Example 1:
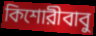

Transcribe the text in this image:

কিশোরীবাবু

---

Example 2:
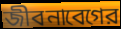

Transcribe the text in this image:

জীবনাবেগের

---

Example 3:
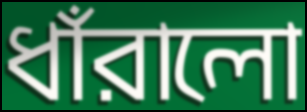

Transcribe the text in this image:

ধাঁরালো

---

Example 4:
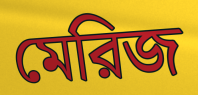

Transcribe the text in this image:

মেরিজ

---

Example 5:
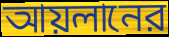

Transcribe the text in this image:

আয়লানের